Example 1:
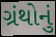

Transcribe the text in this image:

ગ્રંથોનું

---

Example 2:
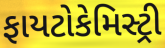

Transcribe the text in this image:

ફાયટોકેમિસ્ટ્રી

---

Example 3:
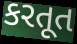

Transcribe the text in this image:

કરતૂત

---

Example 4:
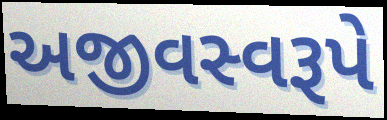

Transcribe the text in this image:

અજીવસ્વરૂપે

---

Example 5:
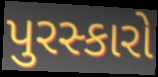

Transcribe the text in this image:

પુરસ્કારો